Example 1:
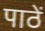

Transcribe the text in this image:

पाठें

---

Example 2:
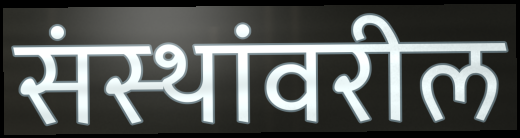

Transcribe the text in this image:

संस्थांवरील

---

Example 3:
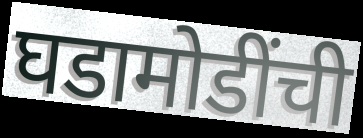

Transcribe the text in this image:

घडामोडींची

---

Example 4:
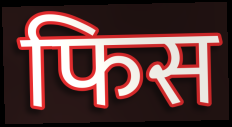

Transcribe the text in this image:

फिस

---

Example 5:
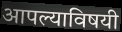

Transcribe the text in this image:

आपल्याविषयी